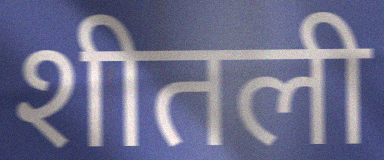
शीतली